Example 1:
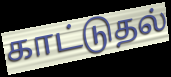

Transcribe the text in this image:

காட்டுதல்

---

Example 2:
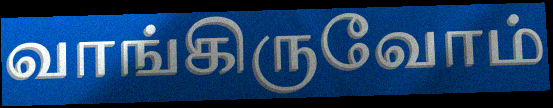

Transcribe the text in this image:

வாங்கிருவோம்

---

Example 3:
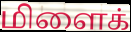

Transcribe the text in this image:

மிளைக்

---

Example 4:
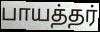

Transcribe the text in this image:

பாயத்தர்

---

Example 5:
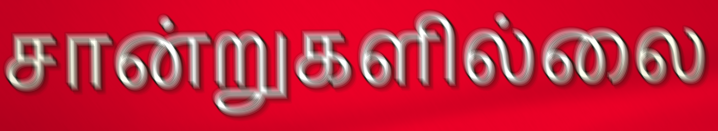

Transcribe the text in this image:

சான்றுகளில்லை